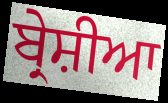
ਬ੍ਰੇਸ਼ੀਆ